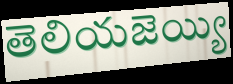
తెలియజెయ్యి